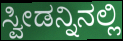
ಸ್ವೀಡನ್ನಿನಲ್ಲಿ